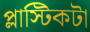
প্লাস্টিকটা